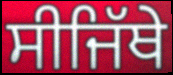
ਸੀਜਿੱਥੇ